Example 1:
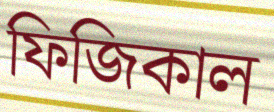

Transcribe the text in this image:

ফিজিকাল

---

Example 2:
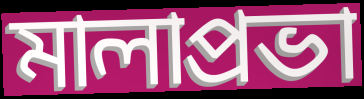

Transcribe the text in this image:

মালাপ্রভা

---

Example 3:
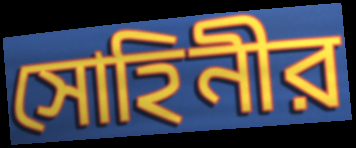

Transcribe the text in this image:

সোহিনীর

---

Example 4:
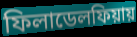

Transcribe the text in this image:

ফিলাডেলফিয়ায়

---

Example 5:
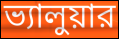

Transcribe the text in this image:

ভ্যালুয়ার